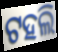
ଟହଲି